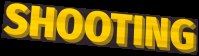
SHOOTING